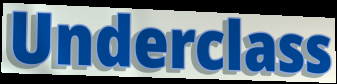
Underclass